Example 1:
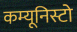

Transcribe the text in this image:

कम्यूनिस्टो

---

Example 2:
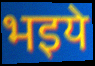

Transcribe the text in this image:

भइये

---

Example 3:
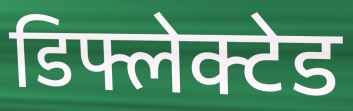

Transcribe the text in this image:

डिफ्लेक्टेड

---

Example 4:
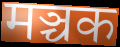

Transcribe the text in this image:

मञ्चक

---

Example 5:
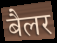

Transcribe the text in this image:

बैलर